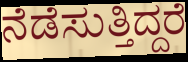
ನೆಡೆಸುತ್ತಿದ್ದರೆ